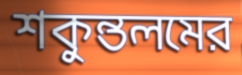
শকুন্তলমের